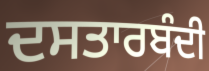
ਦਸਤਾਰਬੰਦੀ